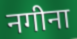
नगीना